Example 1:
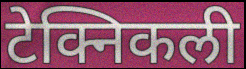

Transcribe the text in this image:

टेक्निकली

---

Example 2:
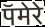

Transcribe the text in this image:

पॅमेरे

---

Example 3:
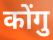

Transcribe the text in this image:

कोंगु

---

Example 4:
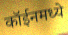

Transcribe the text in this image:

कॉईनमध्ये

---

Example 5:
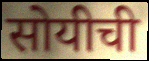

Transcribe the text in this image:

सोयीची